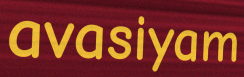
avasiyam